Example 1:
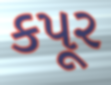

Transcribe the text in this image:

કપૂર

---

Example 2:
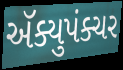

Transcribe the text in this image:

ઍક્યુપંક્ચર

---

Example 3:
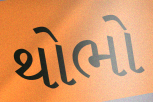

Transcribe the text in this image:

થોભો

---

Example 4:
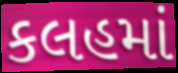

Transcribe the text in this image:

કલહમાં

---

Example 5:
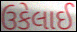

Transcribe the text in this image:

ઉકેલાઈ